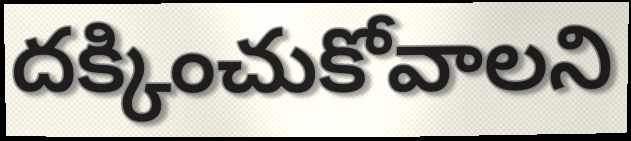
దక్కించుకోవాలని